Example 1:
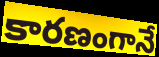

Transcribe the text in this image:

కారణంగానే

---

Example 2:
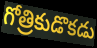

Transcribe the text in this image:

గోత్రికుడొకడు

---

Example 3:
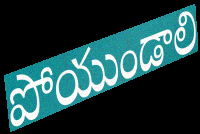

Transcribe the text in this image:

పోయుండాలి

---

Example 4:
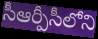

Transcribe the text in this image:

సీఆర్పీసీలోని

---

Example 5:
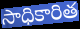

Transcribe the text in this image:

సాధికారిత